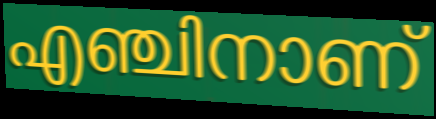
എഞ്ചിനാണ്